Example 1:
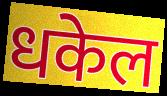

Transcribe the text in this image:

धकेल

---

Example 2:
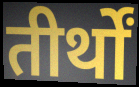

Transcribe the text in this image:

तीर्थों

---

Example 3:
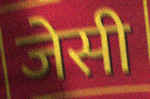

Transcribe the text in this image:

जेसी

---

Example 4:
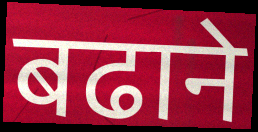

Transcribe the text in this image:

बढाने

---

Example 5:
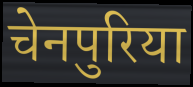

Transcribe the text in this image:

चेनपुरिया